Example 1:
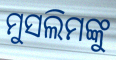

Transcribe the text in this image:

ମୁସଲିମଙ୍କୁ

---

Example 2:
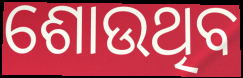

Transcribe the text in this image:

ଶୋଉଥିବ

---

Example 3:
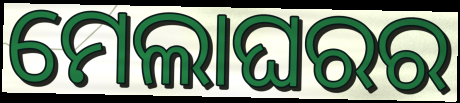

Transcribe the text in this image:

ମେଲାଘରର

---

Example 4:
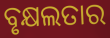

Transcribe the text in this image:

ବୃକ୍ଷଲତାର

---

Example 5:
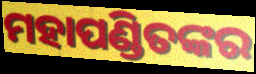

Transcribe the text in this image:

ମହାପଣ୍ଡିତଙ୍କର